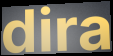
dira